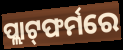
ପ୍ଲାଟ୍‌ଫର୍ମରେ